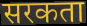
सरकता